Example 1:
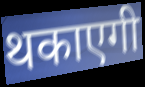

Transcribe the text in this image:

थकाएगी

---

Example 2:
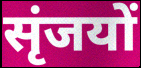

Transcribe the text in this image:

सृंजयों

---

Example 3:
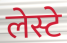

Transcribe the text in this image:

लेस्टे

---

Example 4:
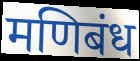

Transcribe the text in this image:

मणिबंध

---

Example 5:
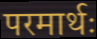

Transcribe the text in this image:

परमार्थः